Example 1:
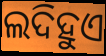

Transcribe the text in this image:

ଲଦିହୁଏ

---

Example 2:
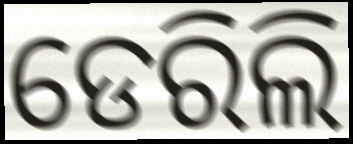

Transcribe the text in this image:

ଡେରିଲି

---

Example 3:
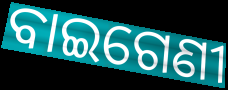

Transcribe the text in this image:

ବାଇଗେଣୀ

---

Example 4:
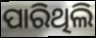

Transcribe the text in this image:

ପାରିଥିଲି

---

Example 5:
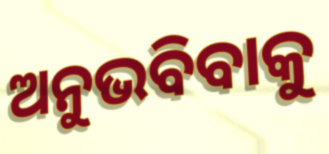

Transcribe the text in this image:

ଅନୁଭବିବାକୁ